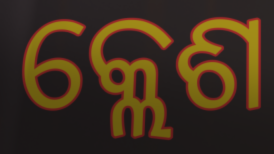
କ୍ଲେଶ